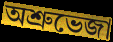
অশ্রুভেজা